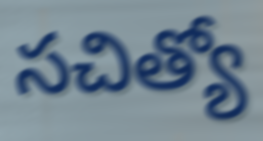
సచిత్యో